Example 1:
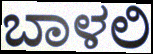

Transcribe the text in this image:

ಬಾಳಲಿ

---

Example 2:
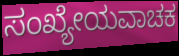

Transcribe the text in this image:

ಸಂಖ್ಯೇಯವಾಚಕ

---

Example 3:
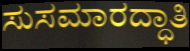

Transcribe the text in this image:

ಸುಸಮಾರದ್ಧಾತಿ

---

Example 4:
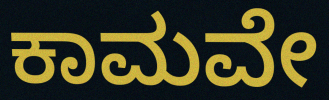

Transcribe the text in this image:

ಕಾಮವೇ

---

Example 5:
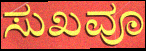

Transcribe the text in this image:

ಸುಖವೂ